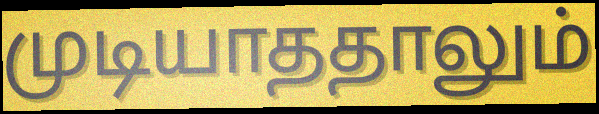
முடியாததாலும்